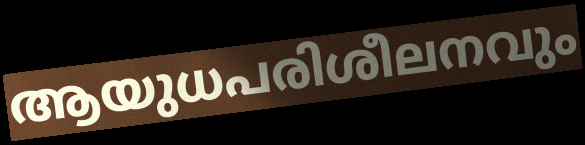
ആയുധപരിശീലനവും